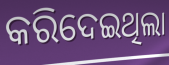
କରିଦେଇଥିଲା